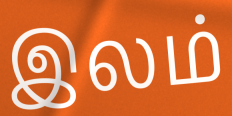
இலம்